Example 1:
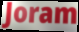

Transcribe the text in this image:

Joram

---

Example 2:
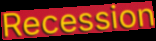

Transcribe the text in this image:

Recession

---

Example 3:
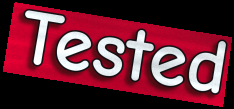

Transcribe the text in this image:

Tested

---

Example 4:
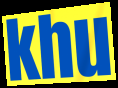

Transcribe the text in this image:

khu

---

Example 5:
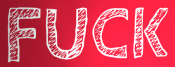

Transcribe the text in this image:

FUCK